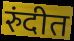
रुंदीत